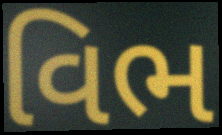
વિભ